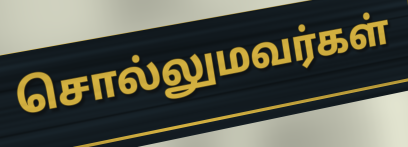
சொல்லுமவர்கள்